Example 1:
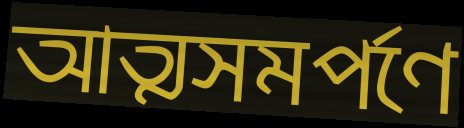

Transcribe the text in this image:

আত্মসমর্পণে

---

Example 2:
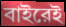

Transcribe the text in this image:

বাইরেই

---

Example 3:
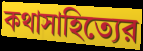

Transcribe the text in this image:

কথাসাহিত্যের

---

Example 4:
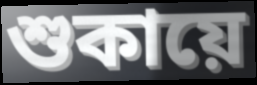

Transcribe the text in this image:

শুকায়ে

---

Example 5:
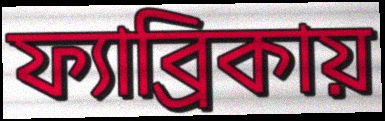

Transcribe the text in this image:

ফ্যাব্রিকায়